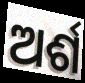
ଅର୍ଶ